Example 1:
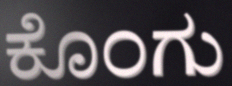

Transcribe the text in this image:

ಕೊಂಗು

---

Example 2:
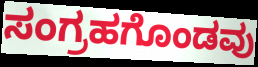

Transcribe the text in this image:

ಸಂಗ್ರಹಗೊಂಡವು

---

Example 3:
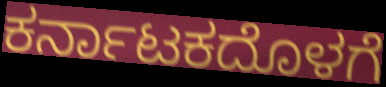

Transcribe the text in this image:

ಕರ್ನಾಟಕದೊಳಗೆ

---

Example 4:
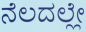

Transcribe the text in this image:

ನೆಲದಲ್ಲೇ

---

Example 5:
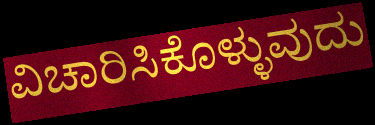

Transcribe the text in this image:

ವಿಚಾರಿಸಿಕೊಳ್ಳುವುದು